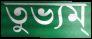
তুভ্যম্